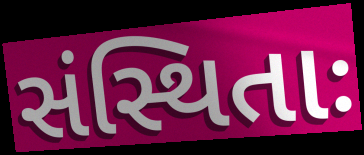
સંસ્થિતાઃ